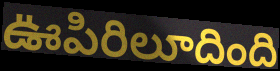
ఊపిరిలూదింది